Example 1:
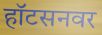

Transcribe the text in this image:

हॉटसनवर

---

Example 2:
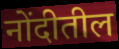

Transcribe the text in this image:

नोंदीतील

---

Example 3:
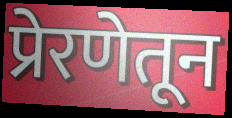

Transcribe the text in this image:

प्रेरणेतून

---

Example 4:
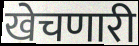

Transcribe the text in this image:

खेचणारी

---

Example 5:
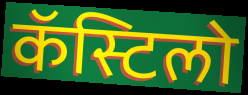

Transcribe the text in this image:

कॅस्टिलो